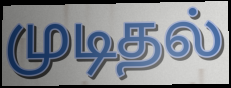
முடிதல்